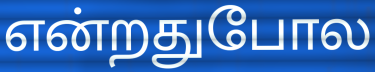
என்றதுபோல